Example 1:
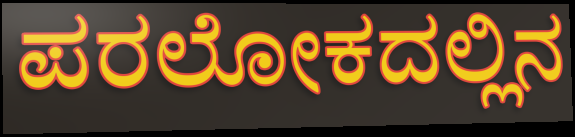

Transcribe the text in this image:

ಪರಲೋಕದಲ್ಲಿನ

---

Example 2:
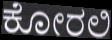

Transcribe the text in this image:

ಕೋರಲಿ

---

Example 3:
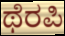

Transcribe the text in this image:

ಥೆರಪಿ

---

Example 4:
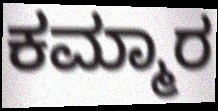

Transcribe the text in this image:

ಕಮ್ಮಾರ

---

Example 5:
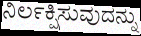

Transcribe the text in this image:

ನಿರ್ಲಕ್ಷಿಸುವುದನ್ನು